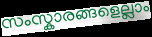
സംസ്കാരങ്ങളെല്ലാം